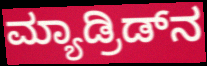
ಮ್ಯಾಡ್ರಿಡ್‌ನ